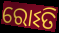
ରୋଽତି